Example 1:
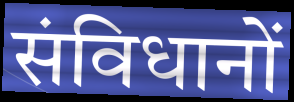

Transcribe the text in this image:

संविधानों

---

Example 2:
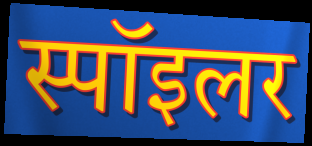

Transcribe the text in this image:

स्पॉइलर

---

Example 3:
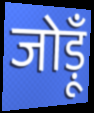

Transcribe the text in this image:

जोड़ूँ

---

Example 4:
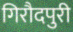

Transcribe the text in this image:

गिरौदपुरी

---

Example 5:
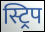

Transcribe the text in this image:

स्ट्रिप